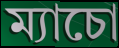
ম্যাচো